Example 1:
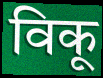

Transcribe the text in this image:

विकू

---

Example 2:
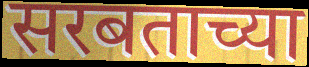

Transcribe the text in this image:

सरबताच्या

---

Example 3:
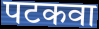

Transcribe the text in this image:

पटकवा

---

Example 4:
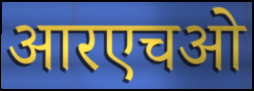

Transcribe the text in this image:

आरएचओ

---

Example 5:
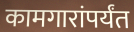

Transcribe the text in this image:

कामगारांपर्यंत